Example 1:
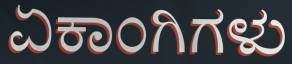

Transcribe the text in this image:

ಏಕಾಂಗಿಗಳು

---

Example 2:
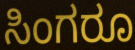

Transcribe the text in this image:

ಸಿಂಗರೂ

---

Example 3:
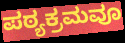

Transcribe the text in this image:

ಪಠ್ಯಕ್ರಮವೂ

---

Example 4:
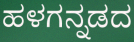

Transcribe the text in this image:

ಹಳಗನ್ನಡದ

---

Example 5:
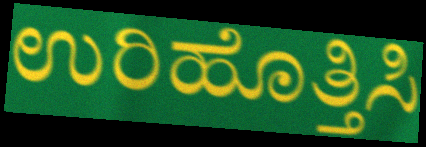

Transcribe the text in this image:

ಉರಿಹೊತ್ತಿಸಿ